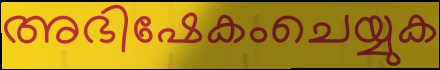
അഭിഷേകംചെയ്യുക